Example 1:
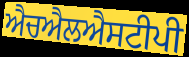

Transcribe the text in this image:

ਐਚਐਲਐਸਟੀਪੀ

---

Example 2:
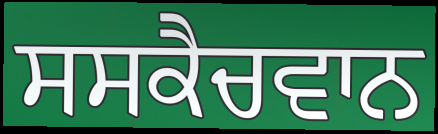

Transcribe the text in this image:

ਸਸਕੈਚਵਾਨ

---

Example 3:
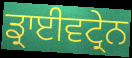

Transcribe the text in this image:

ਡ੍ਰਾਈਵਟ੍ਰੇਨ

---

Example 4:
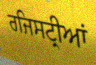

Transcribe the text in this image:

ਰਜਿਸਟ੍ਰੀਆਂ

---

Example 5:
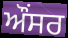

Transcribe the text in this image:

ਔਂਸਰ